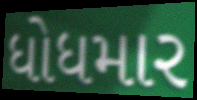
ધોધમાર